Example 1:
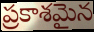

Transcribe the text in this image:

ప్రకాశమైన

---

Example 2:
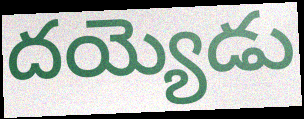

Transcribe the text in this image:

దయ్యెడు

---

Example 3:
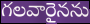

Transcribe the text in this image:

గలవారైనను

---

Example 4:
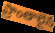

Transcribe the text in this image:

ప్రాంతాలైన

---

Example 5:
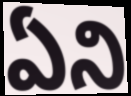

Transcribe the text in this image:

ఏని